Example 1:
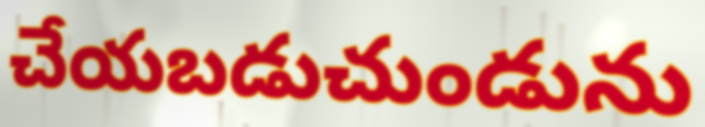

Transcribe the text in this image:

చేయబడుచుండును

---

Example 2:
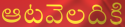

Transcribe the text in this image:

ఆటవెలదికి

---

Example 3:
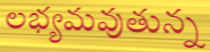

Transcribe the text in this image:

లభ్యమవుతున్న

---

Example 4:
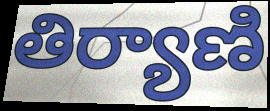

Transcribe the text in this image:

తిర్యాణి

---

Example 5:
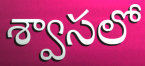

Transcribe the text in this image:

శ్వాసలో